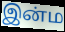
இன்ம